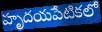
హృదయపేటికలో